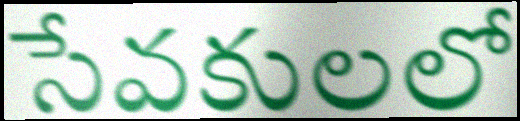
సేవకులలో